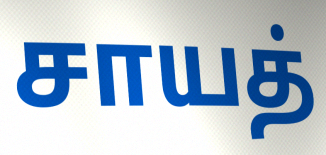
சாயத்